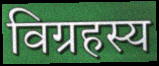
विग्रहस्य